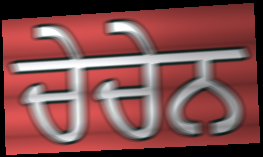
ਚੇਚੇਨ